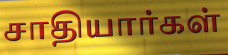
சாதியார்கள்